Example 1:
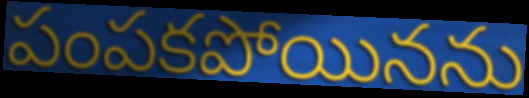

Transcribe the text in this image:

పంపకపోయినను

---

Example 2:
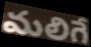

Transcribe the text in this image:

మలిగే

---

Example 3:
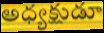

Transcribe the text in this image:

అధ్యక్షుడూ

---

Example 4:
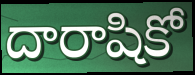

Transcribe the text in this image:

దారాషికో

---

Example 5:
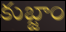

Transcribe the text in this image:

కుబ్జాం